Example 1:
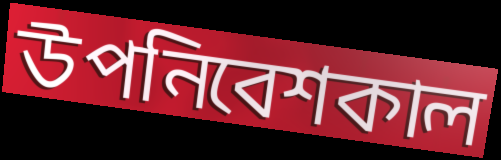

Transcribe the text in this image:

উপনিবেশকাল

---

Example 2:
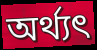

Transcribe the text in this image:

অর্থ্যৎ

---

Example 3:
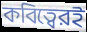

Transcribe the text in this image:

কবিত্বেরই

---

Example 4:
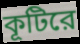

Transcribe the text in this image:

কূটিরে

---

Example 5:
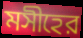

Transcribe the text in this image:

মসীহের